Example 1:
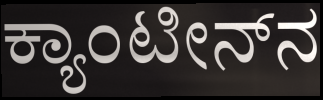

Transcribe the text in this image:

ಕ್ಯಾಂಟೀನ್‌ನ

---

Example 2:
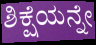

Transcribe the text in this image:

ಶಿಕ್ಷೆಯನ್ನೇ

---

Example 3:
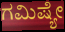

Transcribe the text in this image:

ಗಮಿಷ್ಯೇ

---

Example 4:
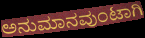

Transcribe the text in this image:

ಅನುಮಾನವುಂಟಾಗಿ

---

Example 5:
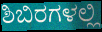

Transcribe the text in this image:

ಶಿಬಿರಗಳಲ್ಲಿ